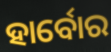
ହାର୍ବୋର